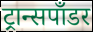
ट्रान्सपाँडर